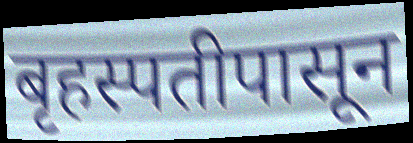
बृहस्पतीपासून